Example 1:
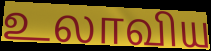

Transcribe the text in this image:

உலாவிய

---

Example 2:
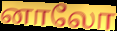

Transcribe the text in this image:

னாலோ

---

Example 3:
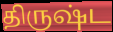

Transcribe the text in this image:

திருஷ்ட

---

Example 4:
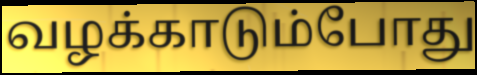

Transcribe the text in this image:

வழக்காடும்போது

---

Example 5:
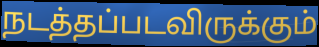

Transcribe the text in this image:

நடத்தப்படவிருக்கும்